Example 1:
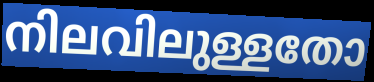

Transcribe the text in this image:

നിലവിലുള്ളതോ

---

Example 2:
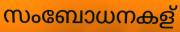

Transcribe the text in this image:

സംബോധനകള്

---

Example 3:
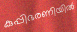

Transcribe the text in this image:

കുപ്പിഭരണിയിൽ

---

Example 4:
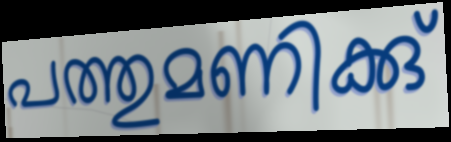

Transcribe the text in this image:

പത്തുമണിക്കു്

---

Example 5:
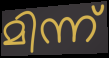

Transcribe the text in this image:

മിന്ന്